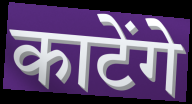
काटेंगे